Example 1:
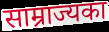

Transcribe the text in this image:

साम्राज्यका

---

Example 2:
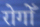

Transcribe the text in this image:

रोगोँ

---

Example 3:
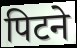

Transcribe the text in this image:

पिटने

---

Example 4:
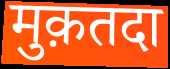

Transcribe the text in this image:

मुक़तदा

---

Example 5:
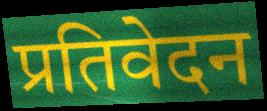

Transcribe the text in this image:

प्रतिवेदन